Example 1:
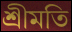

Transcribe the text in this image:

শ্রীমতি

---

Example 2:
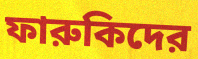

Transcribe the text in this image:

ফারুকিদের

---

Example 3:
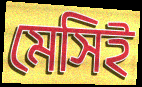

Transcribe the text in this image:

মেসিই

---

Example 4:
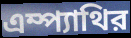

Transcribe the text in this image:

এম্প্যাথির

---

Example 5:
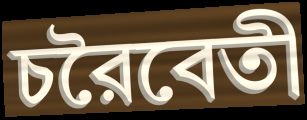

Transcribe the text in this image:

চরৈবেতী